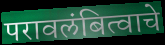
परावलंबित्वाचे